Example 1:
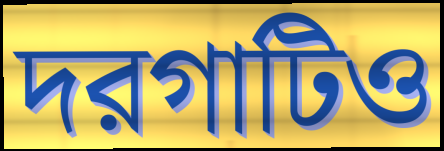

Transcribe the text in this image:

দরগাটিও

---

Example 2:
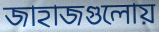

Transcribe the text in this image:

জাহাজগুলোয়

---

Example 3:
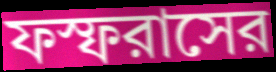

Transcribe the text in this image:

ফস্ফরাসের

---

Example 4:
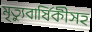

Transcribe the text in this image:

মৃত্যুবার্ষিকীসহ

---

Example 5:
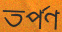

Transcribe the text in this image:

তর্পণ